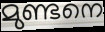
മുണ്ടനെ